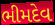
ભીમદેવ